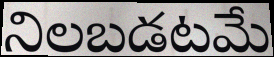
నిలబడటమే